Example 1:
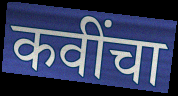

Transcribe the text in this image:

कवींचा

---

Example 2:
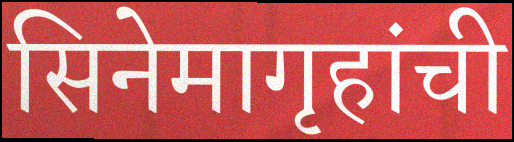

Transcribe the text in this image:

सिनेमागृहांची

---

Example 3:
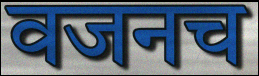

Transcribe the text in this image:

वजनच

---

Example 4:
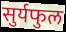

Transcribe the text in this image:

सुर्यफुल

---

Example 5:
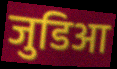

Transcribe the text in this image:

जुडिआ